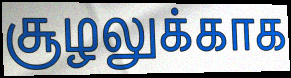
சூழலுக்காக